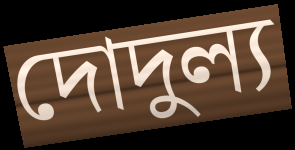
দোদুল্য